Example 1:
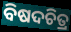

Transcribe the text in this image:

ବିଷଦଚିତ୍ର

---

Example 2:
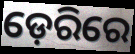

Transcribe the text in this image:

ଡ଼େରିରେ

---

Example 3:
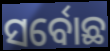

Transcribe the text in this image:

ସର୍ବୋଛ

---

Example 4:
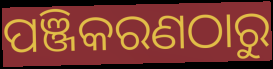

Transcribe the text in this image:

ପଞ୍ଜିକରଣଠାରୁ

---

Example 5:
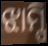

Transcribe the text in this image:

ଝାମ୍ପି